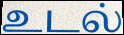
உடல்